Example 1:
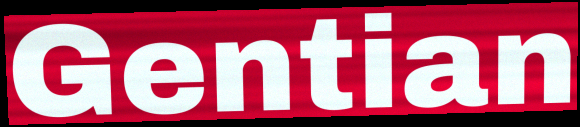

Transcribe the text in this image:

Gentian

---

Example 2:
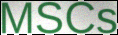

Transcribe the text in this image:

MSCs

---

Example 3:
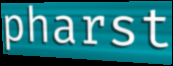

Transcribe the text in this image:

pharst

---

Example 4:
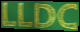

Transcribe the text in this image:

LLDC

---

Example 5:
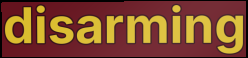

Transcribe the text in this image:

disarming